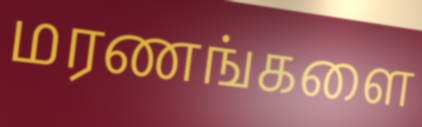
மரணங்களை